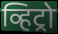
व्हिट्रो